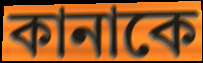
কানাকে